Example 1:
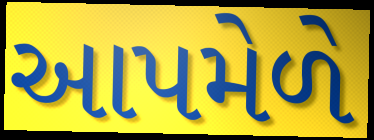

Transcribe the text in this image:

આપમેળે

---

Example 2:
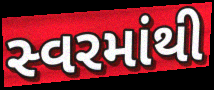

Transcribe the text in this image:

સ્વરમાંથી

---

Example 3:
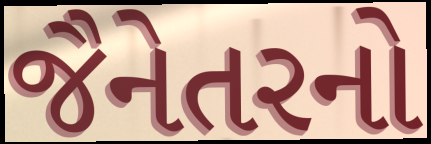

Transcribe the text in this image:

જૈનેતરનો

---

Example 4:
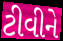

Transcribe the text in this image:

ટીવીને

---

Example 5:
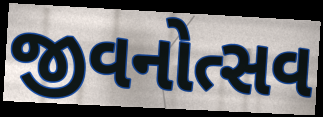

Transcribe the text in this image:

જીવનોત્સવ